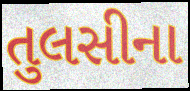
તુલસીના